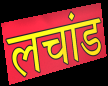
लचांड